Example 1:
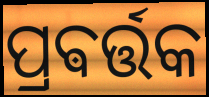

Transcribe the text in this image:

ପ୍ରଵର୍ତ୍ତକ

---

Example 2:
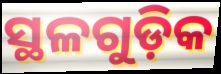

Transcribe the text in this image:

ସ୍ଥଳଗୁଡ଼ିକ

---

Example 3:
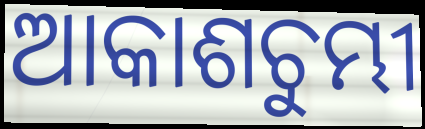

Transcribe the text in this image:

ଆକାଶଚୁମ୍ଭୀ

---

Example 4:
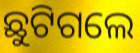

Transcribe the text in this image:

ଛୁଟିଗଲେ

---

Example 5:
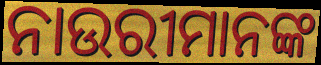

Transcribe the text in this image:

ନାଉରୀମାନଙ୍କ